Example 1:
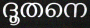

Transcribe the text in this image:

ദൂതനെ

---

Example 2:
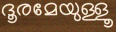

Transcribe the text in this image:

ദൂരമേയുള്ളൂ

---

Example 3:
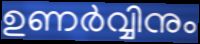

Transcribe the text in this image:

ഉണർവ്വിനും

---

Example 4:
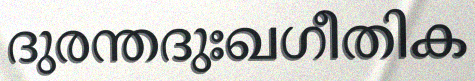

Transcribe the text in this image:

ദുരന്തദുഃഖഗീതിക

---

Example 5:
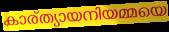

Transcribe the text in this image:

കാര്ത്യായനിയമ്മയെ